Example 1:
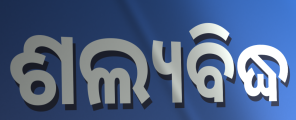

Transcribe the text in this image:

ଶଲ୍ୟବିଦ୍ଧ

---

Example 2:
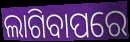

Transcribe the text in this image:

ଲାଗିବାପରେ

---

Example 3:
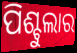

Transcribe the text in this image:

ପିଶ୍ଚୁଲାର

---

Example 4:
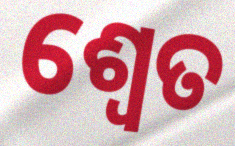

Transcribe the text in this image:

ଶ୍ଵେତ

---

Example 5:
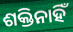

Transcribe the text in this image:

ଶକ୍ତିନାହିଁ